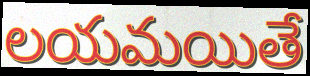
లయమయితే